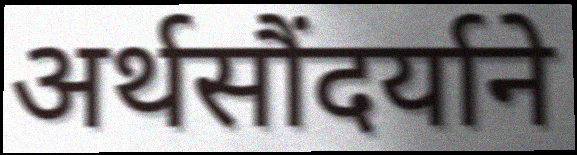
अर्थसौंदर्याने